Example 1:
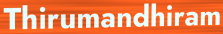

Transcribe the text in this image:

Thirumandhiram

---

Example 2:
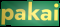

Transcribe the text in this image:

pakai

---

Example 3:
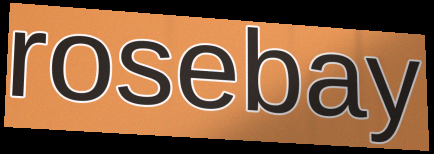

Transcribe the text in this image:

rosebay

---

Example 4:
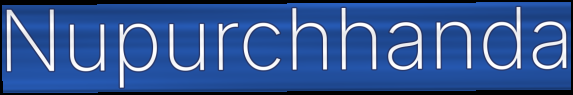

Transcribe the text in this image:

Nupurchhanda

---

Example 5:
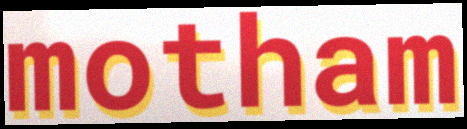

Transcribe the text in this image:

motham